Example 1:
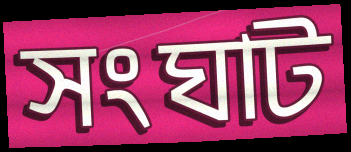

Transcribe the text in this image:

সংঘাট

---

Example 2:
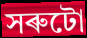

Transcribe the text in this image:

সৰুটো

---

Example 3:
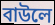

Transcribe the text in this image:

বাউলে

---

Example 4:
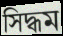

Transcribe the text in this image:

সিদ্ধম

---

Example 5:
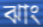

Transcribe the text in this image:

ঝাং